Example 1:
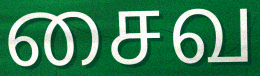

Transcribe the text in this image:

சைவ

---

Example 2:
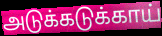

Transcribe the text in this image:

அடுக்கடுக்காய்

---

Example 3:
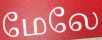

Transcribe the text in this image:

மேலே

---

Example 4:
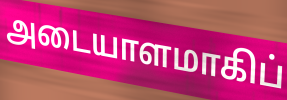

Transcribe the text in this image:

அடையாளமாகிப்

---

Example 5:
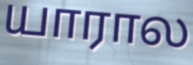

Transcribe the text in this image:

யாரால